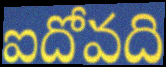
ఐదోవది